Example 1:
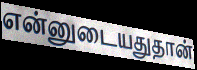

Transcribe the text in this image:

என்னுடையதுதான்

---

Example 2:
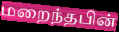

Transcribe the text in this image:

மறைந்தபின்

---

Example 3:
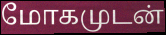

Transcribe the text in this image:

மோகமுடன்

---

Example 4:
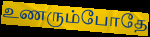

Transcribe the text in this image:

உணரும்போதே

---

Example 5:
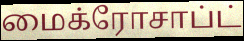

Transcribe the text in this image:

மைக்ரோசாப்ட்